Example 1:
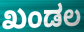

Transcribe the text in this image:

ಖಂಡಲ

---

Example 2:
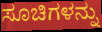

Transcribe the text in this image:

ಸೂಚಿಗಳನ್ನು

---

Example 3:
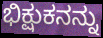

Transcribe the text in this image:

ಭಿಕ್ಷುಕನನ್ನು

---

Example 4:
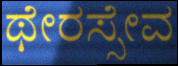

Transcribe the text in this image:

ಥೇರಸ್ಸೇವ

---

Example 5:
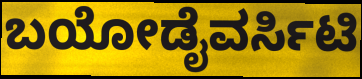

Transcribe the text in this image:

ಬಯೋಡೈವರ್ಸಿಟಿ